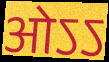
ओऽऽ